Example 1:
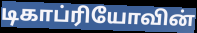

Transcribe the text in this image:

டிகாப்ரியோவின்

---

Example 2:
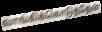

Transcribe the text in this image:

வாங்கிக்கொடுத்தேன்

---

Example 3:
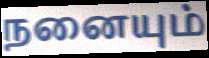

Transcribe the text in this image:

நனையும்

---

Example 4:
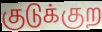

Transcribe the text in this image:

குடுக்குற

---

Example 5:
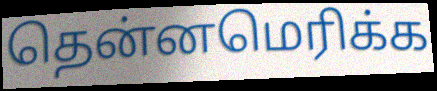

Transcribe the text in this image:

தென்னமெரிக்க